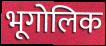
भूगोलिक